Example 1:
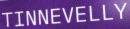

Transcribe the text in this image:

TINNEVELLY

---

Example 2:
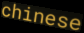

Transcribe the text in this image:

chinese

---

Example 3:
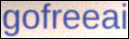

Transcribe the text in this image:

gofreeai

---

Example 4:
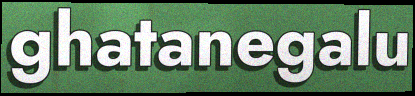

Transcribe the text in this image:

ghatanegalu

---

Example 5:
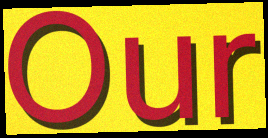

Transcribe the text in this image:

Our